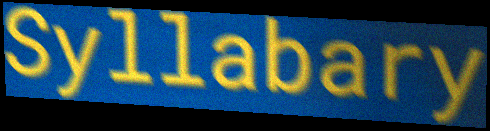
Syllabary